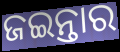
ଜଇନ୍ତାର